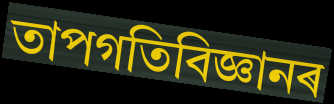
তাপগতিবিজ্ঞানৰ